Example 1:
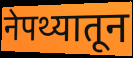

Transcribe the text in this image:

नेपथ्यातून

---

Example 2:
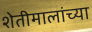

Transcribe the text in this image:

शेतीमालांच्या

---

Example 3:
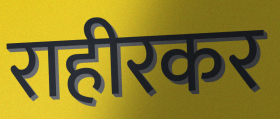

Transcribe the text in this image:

राहीरकर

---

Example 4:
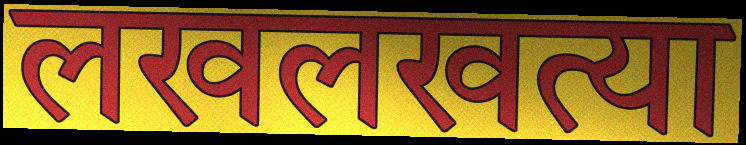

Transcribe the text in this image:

लखलखत्या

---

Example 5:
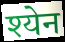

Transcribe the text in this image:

श्येन